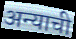
अन्याची